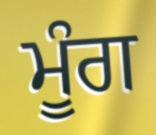
ਮੂੰਗ